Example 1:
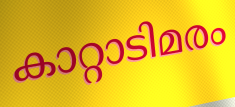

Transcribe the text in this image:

കാറ്റാടിമരം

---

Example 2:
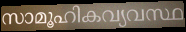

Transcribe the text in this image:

സാമൂഹികവ്യവസ്ഥ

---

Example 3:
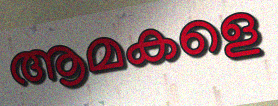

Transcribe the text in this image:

ആമകളെ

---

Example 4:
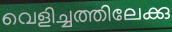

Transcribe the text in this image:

വെളിച്ചത്തിലേക്കു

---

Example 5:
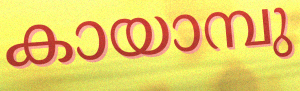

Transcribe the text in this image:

കായാമ്പു